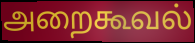
அறைகூவல்